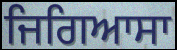
ਜਿਗਿਆਸਾ